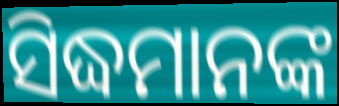
ସିଦ୍ଧମାନଙ୍କ